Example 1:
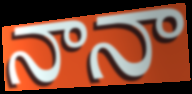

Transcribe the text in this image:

నానా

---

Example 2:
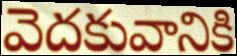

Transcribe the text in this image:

వెదకువానికి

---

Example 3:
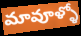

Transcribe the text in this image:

మావూళ్ళో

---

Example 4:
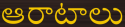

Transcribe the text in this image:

ఆరాటాలు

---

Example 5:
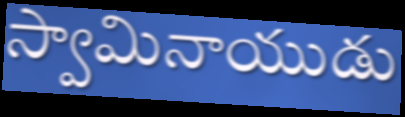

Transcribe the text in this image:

స్వామినాయుడు